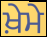
ਖ਼ੇਮੇ